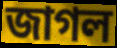
জাগল